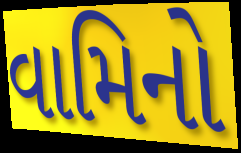
વામિનો